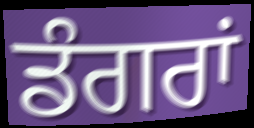
ਡੰਗਰਾਂ